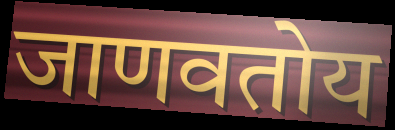
जाणवतोय